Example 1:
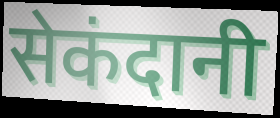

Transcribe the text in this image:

सेकंदानी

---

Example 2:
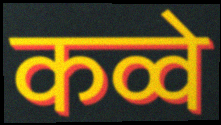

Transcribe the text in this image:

कव्वे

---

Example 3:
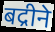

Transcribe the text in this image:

बद्रीने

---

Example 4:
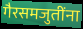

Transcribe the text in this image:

गैरसमजुतींना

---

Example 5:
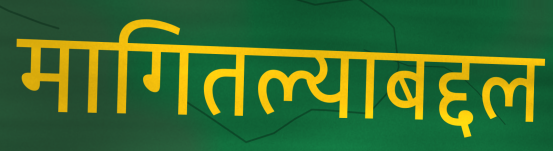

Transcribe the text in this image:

मागितल्याबद्दल